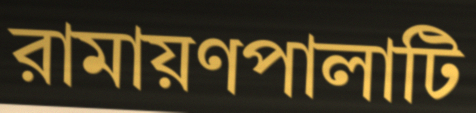
রামায়ণপালাটি